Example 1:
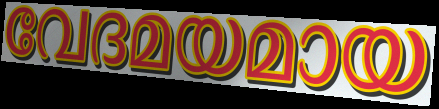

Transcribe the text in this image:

വേദമയമായ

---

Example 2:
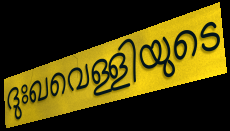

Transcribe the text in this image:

ദുഃഖവെള്ളിയുടെ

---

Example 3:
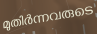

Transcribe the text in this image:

മുതിർന്നവരുടെ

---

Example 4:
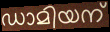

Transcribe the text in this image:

ഡാമിയന്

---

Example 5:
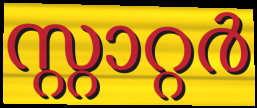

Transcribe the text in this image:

സ്റ്റാറ്റർ